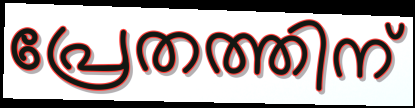
പ്രേതത്തിന്